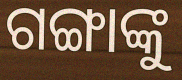
ଗଙ୍ଗାଙ୍କୁ